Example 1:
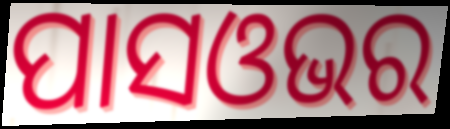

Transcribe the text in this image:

ପାସଓଭର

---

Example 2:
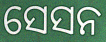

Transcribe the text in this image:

ସେସନ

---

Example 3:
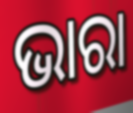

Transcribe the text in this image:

ଭାରା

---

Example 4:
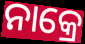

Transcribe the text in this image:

ନାକ୍ରେ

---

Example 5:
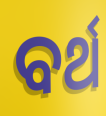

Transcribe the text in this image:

ବର୍ଥ